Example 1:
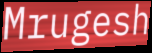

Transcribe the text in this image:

Mrugesh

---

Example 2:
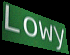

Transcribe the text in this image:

Lowy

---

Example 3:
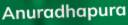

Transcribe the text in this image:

Anuradhapura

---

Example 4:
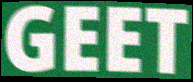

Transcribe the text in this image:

GEET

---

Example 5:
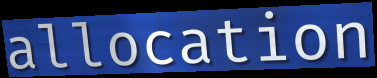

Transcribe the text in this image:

allocation